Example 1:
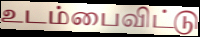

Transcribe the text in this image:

உடம்பைவிட்டு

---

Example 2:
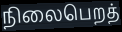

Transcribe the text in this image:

நிலைபெறத்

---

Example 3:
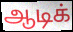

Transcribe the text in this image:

ஆடிக்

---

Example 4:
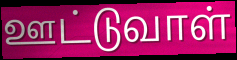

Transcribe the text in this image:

ஊட்டுவாள்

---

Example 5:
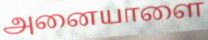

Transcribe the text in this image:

அனையாளை